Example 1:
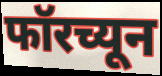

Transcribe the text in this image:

फॉरच्यून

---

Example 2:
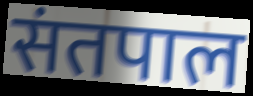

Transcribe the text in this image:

संतपाल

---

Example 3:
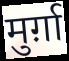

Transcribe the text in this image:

मुर्ग़ा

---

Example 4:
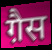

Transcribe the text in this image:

ग़ैस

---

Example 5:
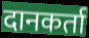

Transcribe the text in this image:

दानकर्ता